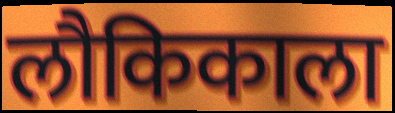
लौकिकाला